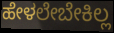
ಹೇಳಲೇಬೇಕಿಲ್ಲ